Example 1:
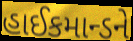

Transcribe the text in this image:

હાઈકમાન્ડને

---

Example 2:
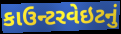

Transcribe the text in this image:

કાઉન્ટરવેઇટનું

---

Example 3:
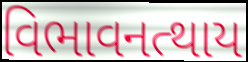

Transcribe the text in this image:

વિભાવનત્થાય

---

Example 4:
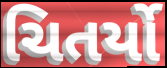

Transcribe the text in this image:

ચિતર્યો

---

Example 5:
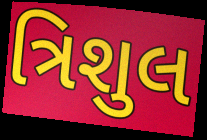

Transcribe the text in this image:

ત્રિશુલ